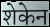
शेकेन